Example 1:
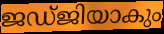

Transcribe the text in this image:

ജഡ്ജിയാകും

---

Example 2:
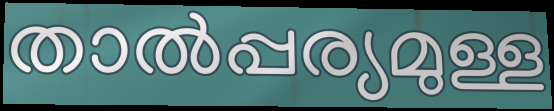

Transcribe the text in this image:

താൽപ്പര്യമുള്ള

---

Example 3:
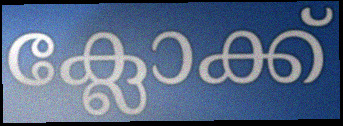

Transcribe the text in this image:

ക്ലോക്ക്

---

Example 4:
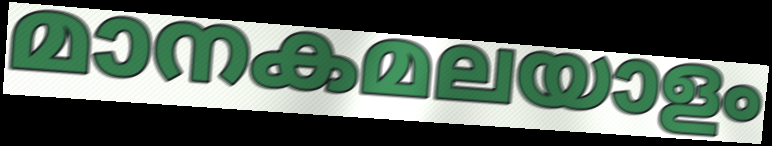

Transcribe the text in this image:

മാനകമലയാളം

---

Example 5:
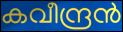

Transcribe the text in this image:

കവീന്ദ്രൻ